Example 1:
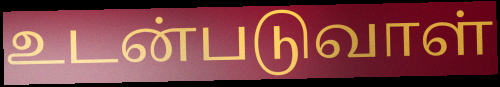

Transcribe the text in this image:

உடன்படுவாள்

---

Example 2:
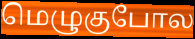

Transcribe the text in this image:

மெழுகுபோல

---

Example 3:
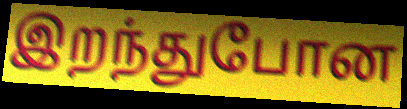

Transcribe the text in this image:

இறந்துபோன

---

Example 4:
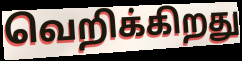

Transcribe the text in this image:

வெறிக்கிறது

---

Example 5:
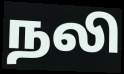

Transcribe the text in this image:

நலி